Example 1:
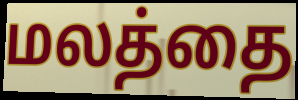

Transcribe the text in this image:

மலத்தை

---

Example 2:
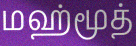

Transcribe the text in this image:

மஹ்மூத்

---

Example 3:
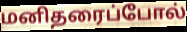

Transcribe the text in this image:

மனிதரைப்போல்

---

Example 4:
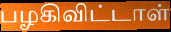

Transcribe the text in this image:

பழகிவிட்டாள்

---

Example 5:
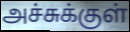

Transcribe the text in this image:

அச்சுக்குள்